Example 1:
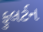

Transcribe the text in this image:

ફુલર્ટન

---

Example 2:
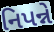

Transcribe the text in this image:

નિપન્ને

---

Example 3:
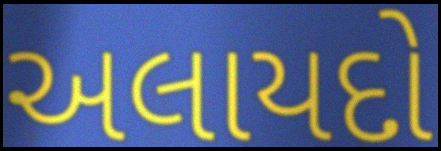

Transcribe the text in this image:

અલાયદો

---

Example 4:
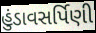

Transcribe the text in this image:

હુંડાવસર્પિણી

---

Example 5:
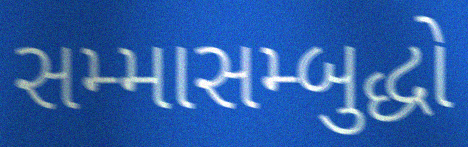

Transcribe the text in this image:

સમ્માસમ્બુદ્ધો